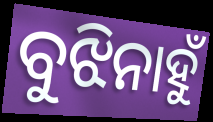
ବୁଝିନାହୁଁ